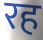
रह